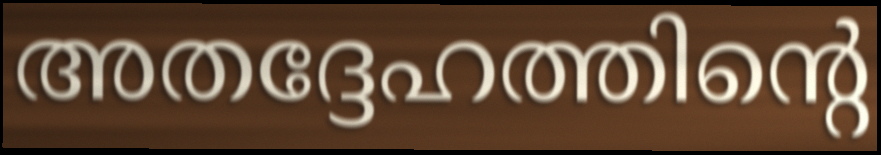
അതദ്ദേഹത്തിന്റെ